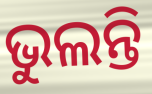
ଭୁଲନ୍ତି